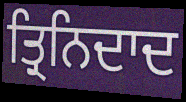
ਤ੍ਰਿਨਿਦਾਦ